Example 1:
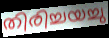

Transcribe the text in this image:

തിരിച്ചയച്ചു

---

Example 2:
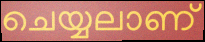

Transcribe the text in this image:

ചെയ്യലാണ്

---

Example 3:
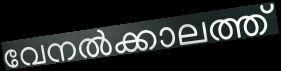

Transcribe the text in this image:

വേനൽക്കാലത്ത്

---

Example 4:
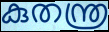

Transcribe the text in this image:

കുതന്ത്ര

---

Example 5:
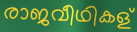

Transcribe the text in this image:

രാജവീഥികള്